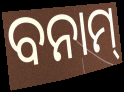
ବନାମ୍